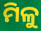
ମିଳୁ